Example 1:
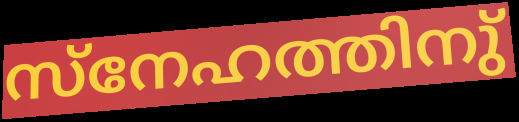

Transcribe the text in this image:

സ്നേഹത്തിനു്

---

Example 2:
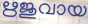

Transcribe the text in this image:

ഋജുവായ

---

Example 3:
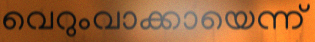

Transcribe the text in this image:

വെറുംവാക്കായെന്ന്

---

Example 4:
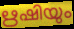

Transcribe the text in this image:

ഋഷിയും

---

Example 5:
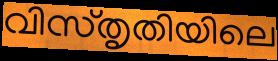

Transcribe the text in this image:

വിസ്തൃതിയിലെ